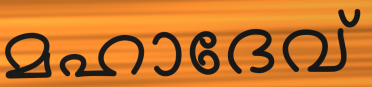
മഹാദേവ്